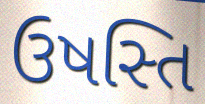
ઉષસ્તિ